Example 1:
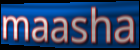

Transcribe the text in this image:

maasha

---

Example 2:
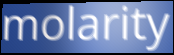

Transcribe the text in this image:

molarity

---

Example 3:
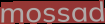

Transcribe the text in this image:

mossad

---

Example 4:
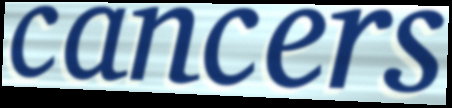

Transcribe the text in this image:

cancers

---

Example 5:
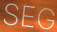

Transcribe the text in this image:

SEG